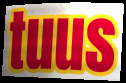
tuus